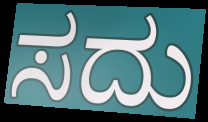
ಸದು